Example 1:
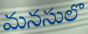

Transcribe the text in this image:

మనసులొ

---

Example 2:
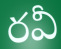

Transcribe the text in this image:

రవీ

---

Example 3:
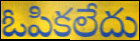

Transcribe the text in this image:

ఓపికలేదు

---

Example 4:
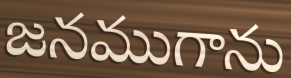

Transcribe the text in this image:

జనముగాను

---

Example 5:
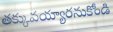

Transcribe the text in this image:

తక్కువయ్యారనుకోండి